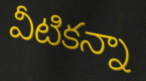
వీటికన్నా